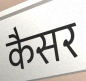
कैसर